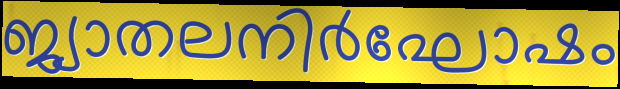
ജ്യാതലനിർഘോഷം